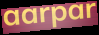
aarpar